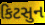
કિટસુન